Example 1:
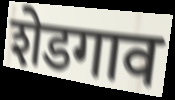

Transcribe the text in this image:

शेडगाव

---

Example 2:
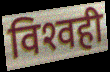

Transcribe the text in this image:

विश्वही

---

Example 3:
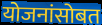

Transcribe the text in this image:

योजनांसोबत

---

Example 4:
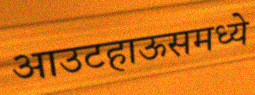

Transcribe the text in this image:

आउटहाऊसमध्ये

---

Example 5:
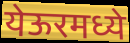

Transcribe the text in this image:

येऊरमध्ये